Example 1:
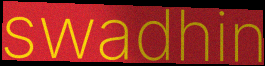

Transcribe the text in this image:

swadhin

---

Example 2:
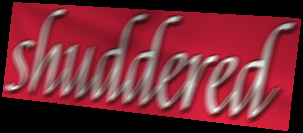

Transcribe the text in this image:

shuddered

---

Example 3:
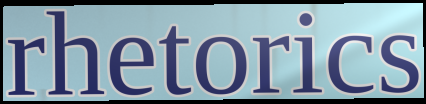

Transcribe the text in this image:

rhetorics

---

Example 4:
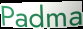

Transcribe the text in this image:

Padma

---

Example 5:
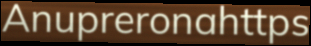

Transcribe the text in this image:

Anupreronahttps